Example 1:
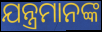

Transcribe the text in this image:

ଯନ୍ତ୍ରମାନଙ୍କ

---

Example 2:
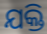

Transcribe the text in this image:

ଯକ୍ତି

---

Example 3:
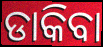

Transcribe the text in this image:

ଡାକିବା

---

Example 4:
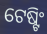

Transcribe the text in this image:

ଟେଷ୍ଟିଂ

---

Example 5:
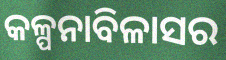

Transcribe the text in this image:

କଳ୍ପନାବିଳାସର